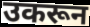
उकरून